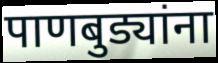
पाणबुड्यांना